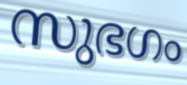
സുഭഗം